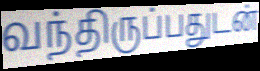
வந்திருப்பதுடன்